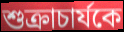
শুক্রাচার্যকে